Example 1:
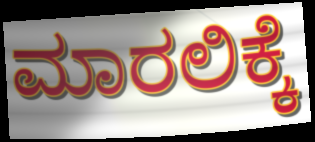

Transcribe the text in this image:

ಮಾರಲಿಕ್ಕೆ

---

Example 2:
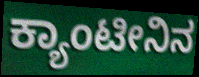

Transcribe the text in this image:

ಕ್ಯಾಂಟೀನಿನ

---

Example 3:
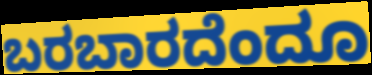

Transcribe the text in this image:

ಬರಬಾರದೆಂದೂ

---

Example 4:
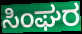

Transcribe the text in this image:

ಸಿಂಘರ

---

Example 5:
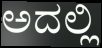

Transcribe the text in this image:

ಅದಲ್ಲಿ